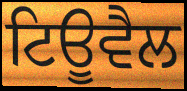
ਟਿਊਵੈਲ